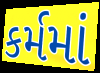
કર્મમાં